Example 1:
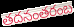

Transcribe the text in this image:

తదనంతరంబ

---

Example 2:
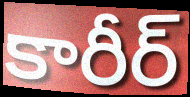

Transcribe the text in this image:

కారీర్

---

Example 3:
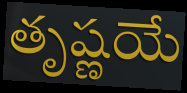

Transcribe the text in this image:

తృష్ణయే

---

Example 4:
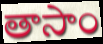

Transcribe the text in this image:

తాసాం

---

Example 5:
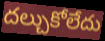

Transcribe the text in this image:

దల్చుకోలేదు